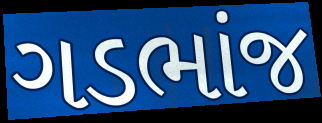
ગડભાંજ